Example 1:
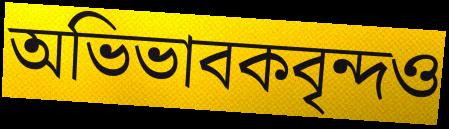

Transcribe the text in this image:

অভিভাবকবৃন্দও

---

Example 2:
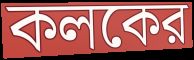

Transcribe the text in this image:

কলকের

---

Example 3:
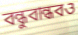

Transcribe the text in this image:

বন্ধুবান্ধবও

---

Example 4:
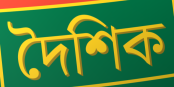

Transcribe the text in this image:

দৈশিক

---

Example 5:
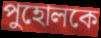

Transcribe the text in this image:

পুহোলকে